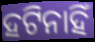
ହଟିନାହିଁ